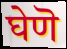
घेणॆ